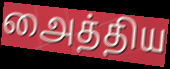
அைத்திய